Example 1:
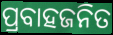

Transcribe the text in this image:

ପ୍ରବାହଜନିତ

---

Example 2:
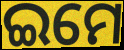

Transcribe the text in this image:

ଇମେ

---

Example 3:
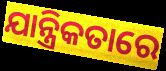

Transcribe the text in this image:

ଯାନ୍ତ୍ରିକତାରେ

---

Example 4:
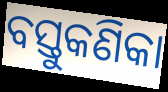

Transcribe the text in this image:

ବସ୍ତୁକଣିକା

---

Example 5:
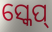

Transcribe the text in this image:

ସ୍କେପ୍